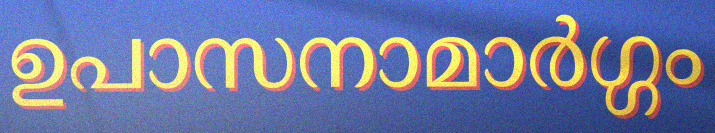
ഉപാസനാമാർഗ്ഗം